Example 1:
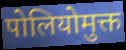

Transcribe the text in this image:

पोलियोमुक्त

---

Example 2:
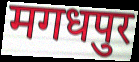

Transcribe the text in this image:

मगधपुर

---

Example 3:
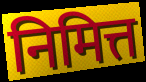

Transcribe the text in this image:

निमित्त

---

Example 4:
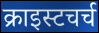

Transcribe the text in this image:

क्राइस्टचर्च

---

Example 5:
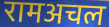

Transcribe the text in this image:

रामअचल